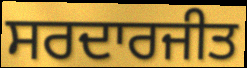
ਸਰਦਾਰਜੀਤ